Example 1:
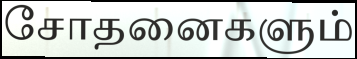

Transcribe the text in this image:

சோதனைகளும்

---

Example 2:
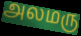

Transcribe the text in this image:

அலமரு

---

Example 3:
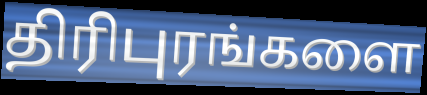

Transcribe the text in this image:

திரிபுரங்களை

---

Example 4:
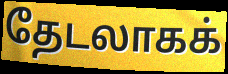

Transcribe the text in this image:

தேடலாகக்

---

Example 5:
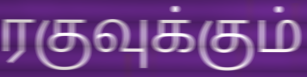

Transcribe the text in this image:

ரகுவுக்கும்